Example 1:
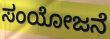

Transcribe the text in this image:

ಸಂಯೋಜನೆ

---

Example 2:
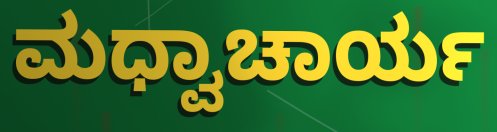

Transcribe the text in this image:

ಮಧ್ವಾಚಾರ್ಯ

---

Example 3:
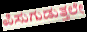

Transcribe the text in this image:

ಪಿಸುಗುಡುತ್ತಲೇ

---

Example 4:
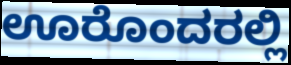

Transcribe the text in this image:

ಊರೊಂದರಲ್ಲಿ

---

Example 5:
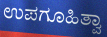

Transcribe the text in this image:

ಉಪಗೂಹಿತ್ವಾ